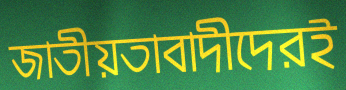
জাতীয়তাবাদীদেরই